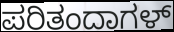
ಪರಿತಂದಾಗಳ್